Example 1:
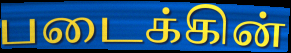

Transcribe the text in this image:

படைக்கின்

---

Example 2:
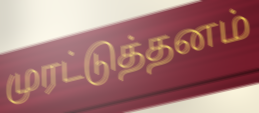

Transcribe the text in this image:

முரட்டுத்தனம்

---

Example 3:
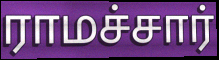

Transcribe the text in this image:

ராமச்சார்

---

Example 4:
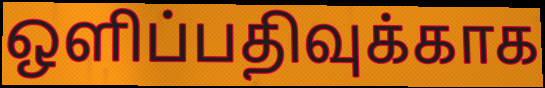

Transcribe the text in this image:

ஒளிப்பதிவுக்காக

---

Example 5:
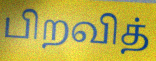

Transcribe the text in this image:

பிறவித்